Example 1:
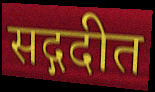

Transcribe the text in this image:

सद्गदीत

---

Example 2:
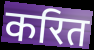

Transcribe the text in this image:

करित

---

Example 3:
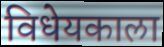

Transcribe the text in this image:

विधेयकाला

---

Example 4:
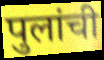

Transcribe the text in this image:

पुलांची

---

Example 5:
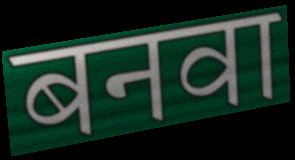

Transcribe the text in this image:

बनवा